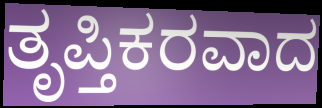
ತೃಪ್ತಿಕರವಾದ